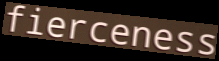
fierceness